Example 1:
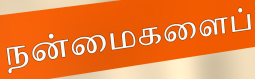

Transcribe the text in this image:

நன்மைகளைப்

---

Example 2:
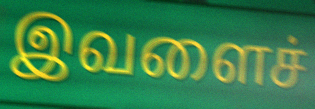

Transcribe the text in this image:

இவளைச்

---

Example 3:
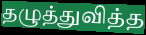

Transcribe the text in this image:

தழுத்துவித்த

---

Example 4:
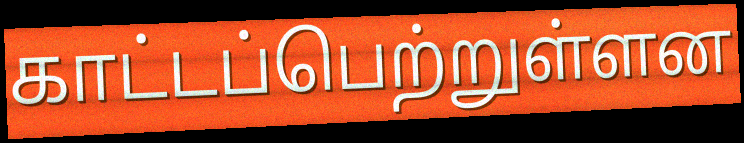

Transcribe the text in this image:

காட்டப்பெற்றுள்ளன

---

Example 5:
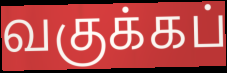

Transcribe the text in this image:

வகுக்கப்